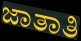
ಜಾತಾತಿ